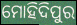
ମୋହିଦିପୁର